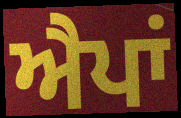
ਐਪਾਂ